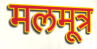
मलमूत्र